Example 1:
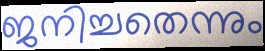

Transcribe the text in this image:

ജനിച്ചതെന്നും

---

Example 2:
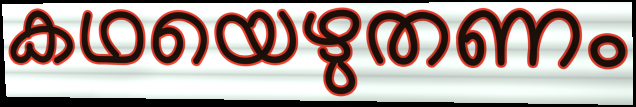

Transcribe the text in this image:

കഥയെഴുതണം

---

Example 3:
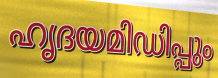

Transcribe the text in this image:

ഹൃദയമിഡിപ്പും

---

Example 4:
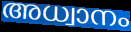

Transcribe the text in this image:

അധ്വാനം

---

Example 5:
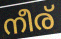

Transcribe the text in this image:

നീര്